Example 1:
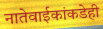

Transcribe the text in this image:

नातेवाईकांकडेही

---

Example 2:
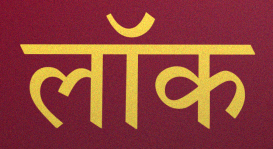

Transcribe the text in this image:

लॉक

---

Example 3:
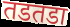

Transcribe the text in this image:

तडतडा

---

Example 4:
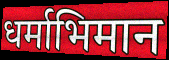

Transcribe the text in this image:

धर्माभिमान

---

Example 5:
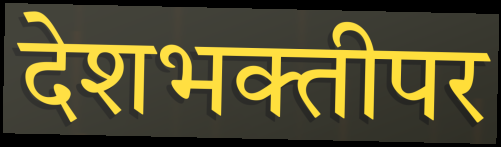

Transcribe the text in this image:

देशभक्तीपर